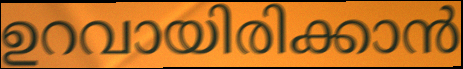
ഉറവായിരിക്കാൻ